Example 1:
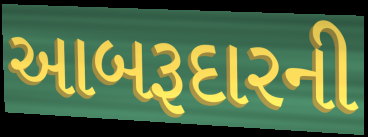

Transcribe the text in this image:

આબરૂદારની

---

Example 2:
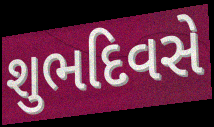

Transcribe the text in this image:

શુભદિવસે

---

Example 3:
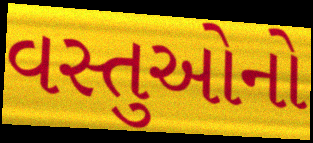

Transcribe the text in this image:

વસ્તુઓનો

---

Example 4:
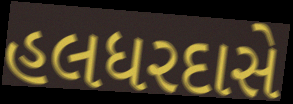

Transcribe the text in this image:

હલધરદાસે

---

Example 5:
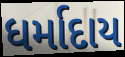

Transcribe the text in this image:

ધર્માદાય